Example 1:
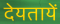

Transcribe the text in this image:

देयतायें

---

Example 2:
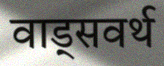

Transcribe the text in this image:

वाड्सवर्थ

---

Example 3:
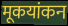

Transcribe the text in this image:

मूकयांकन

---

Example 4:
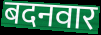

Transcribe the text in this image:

बदनवार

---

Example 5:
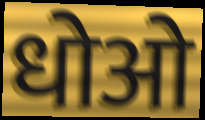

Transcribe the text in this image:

धोओ